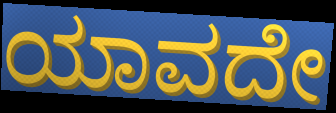
ಯಾವದೇ